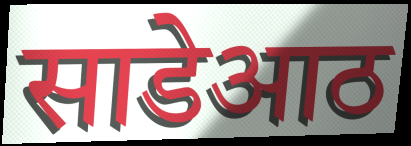
साडेआठ